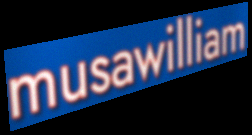
musawilliam